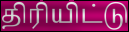
திரியிட்டு